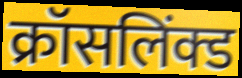
क्रॉसलिंक्ड